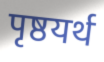
पृष्ठयर्थ